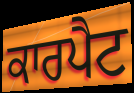
ਕਾਰਪੈਟ